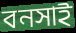
বনসাই